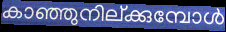
കാഞ്ഞുനില്ക്കുമ്പോൾ